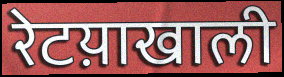
रेटय़ाखाली